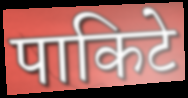
पाकिटे